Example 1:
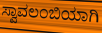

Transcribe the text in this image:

ಸ್ವಾವಲಂಬಿಯಾಗಿ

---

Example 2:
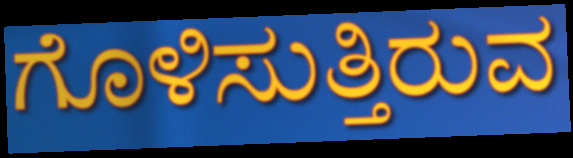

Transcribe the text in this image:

ಗೊಳಿಸುತ್ತಿರುವ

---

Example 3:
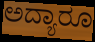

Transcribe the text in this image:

ಅದ್ಯಾರೂ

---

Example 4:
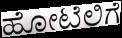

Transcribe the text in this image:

ಹೋಟೆಲಿಗೆ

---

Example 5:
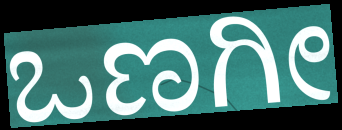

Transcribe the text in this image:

ಒಣಗೀ